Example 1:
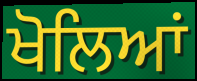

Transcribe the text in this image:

ਖੋਲਿਆਂ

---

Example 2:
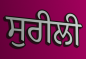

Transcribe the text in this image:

ਸੁਰੀਲੀ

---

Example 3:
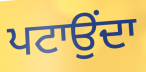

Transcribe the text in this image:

ਪਟਾਉਂਦਾ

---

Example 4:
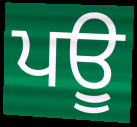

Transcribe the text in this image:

ਪਉੂ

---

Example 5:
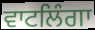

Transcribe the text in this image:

ਵਾਟਲਿੰਗਾ